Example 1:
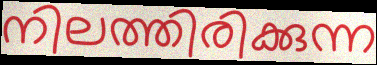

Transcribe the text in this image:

നിലത്തിരിക്കുന്ന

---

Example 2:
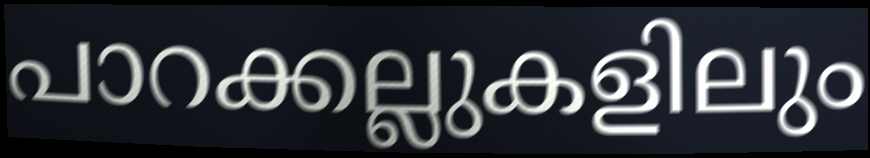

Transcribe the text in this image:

പാറക്കല്ലുകളിലും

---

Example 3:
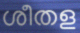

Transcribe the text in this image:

ശീതള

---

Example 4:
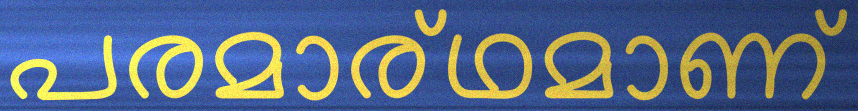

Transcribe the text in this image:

പരമാര്ഥമാണ്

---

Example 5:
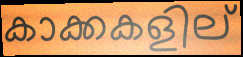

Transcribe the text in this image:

കാക്കകളില്